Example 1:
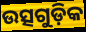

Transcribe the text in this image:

ଉତ୍ସଗୁଡ଼ିକ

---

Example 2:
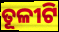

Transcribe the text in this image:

ତୂଳୀଟି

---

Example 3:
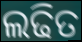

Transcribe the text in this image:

ଲଢିତ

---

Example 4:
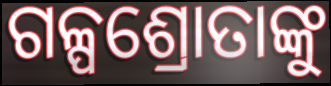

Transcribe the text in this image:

ଗଳ୍ପଶ୍ରୋତାଙ୍କୁ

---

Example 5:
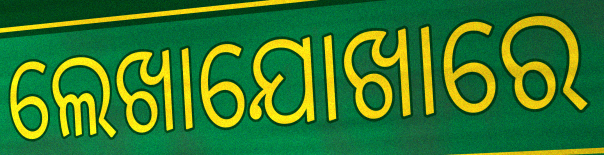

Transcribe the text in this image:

ଲେଖାଯୋଖାରେ